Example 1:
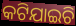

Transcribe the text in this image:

କଟିଯାଇଚି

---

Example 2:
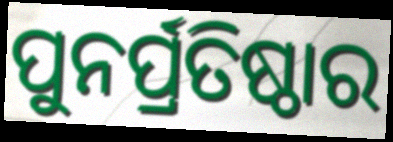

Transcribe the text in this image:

ପୁନର୍ପ୍ରତିଷ୍ଠାର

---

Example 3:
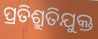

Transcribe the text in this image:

ପ୍ରତିଶ୍ରୁତିଯୁକ୍ତ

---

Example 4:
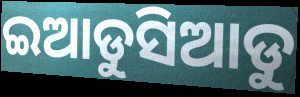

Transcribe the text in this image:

ଇଆଡୁସିଆଡୁ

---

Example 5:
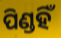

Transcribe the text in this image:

ପିଣ୍ଡହିଁ